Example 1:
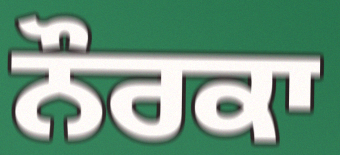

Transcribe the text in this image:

ਨੌਰਕਾ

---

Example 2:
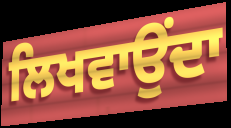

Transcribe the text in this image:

ਲਿਖਵਾਉਂਦਾ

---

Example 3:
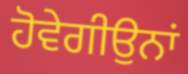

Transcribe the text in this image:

ਹੋਵੇਗੀਉਨਾਂ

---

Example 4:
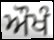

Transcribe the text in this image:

ਔਖੰ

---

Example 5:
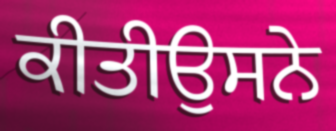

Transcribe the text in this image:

ਕੀਤੀਉਸਨੇ